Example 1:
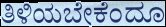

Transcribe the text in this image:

ತಿಳಿಯಬೇಕೆಂದೂ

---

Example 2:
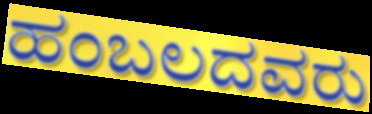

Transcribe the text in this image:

ಹಂಬಲದವರು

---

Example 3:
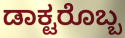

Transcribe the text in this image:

ಡಾಕ್ಟರೊಬ್ಬ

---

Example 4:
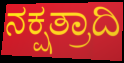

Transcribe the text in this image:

ನಕ್ಷತ್ರಾದಿ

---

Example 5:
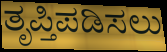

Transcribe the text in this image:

ತೃಪ್ತಿಪಡಿಸಲು